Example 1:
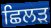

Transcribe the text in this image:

ਛਿਲੜ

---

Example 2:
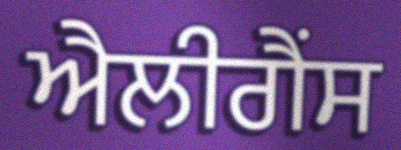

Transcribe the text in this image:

ਐਲੀਗੈਂਸ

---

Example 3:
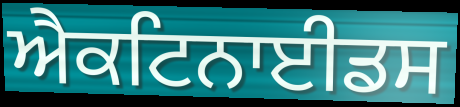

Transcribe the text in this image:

ਐਕਟਿਨਾਈਡਸ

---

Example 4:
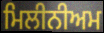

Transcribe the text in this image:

ਮਿਲੀਨੀਅਮ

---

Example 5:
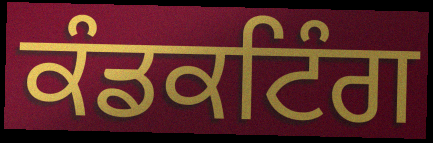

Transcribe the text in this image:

ਕੰਡਕਟਿੰਗ